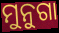
ମୁନୁଗା